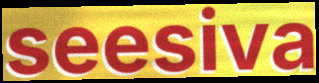
seesiva